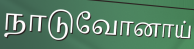
நாடுவோனாய்